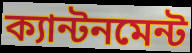
ক্যান্টনমেন্ট